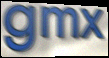
gmx